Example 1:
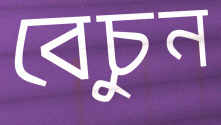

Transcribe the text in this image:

বেচুন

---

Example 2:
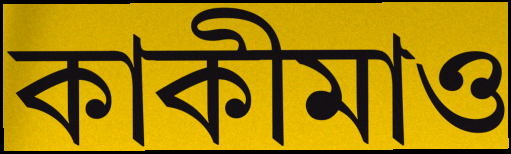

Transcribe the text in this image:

কাকীমাও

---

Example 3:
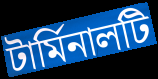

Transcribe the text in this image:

টার্মিনালটি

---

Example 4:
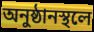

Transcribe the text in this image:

অনুষ্ঠানস্থলে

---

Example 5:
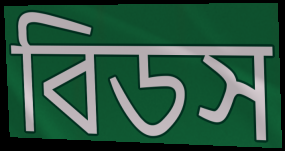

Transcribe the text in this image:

বিডস